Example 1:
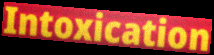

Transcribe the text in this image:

Intoxication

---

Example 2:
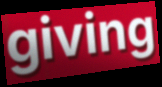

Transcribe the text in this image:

giving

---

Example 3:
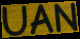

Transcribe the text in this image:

UAN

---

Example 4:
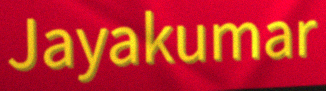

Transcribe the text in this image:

Jayakumar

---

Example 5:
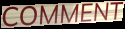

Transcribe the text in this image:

COMMENT